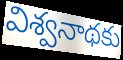
విశ్వనాథకు